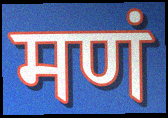
मणं